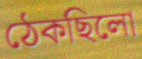
ঠেকছিলো